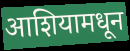
आशियामधून